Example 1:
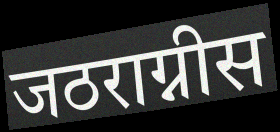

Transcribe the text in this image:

जठराग्नीस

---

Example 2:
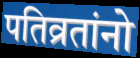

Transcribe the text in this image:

पतिव्रतांनो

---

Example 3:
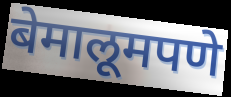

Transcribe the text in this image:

बेमालूमपणे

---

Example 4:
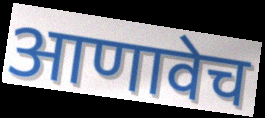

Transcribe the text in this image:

आणावेच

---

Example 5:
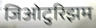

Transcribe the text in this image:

जिओटुरिझम